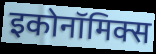
इकोनॉमिक्स